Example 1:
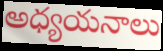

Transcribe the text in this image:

అధ్యయనాలు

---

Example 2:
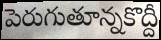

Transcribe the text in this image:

పెరుగుతూన్నకొద్దీ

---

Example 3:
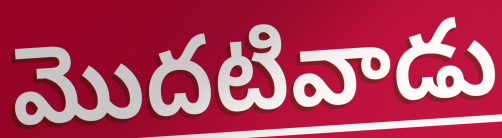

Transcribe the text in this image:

మొదటివాడు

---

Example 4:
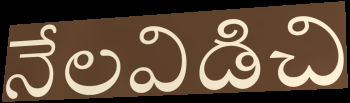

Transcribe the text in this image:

నేలవిడిచి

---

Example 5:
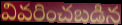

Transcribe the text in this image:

వివరించబడిన